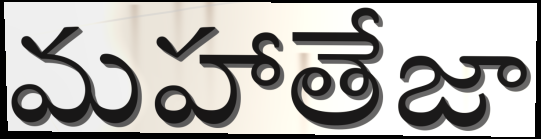
మహాతేజా